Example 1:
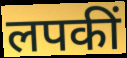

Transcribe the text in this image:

लपकीं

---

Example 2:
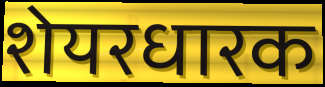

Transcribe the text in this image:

शेयरधारक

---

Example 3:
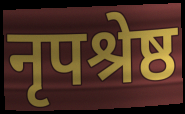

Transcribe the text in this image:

नृपश्रेष्ठ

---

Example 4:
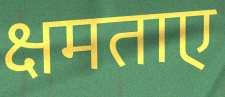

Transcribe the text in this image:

क्षमताए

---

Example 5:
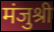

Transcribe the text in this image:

मंजुश्री